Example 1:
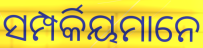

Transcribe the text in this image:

ସମ୍ପର୍କିୟମାନେ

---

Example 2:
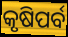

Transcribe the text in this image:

କୃଷିପର୍ବ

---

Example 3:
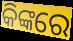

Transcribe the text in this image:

କିଙ୍କରେ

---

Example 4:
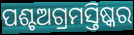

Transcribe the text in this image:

ପଶ୍ଚଅଗ୍ରମସ୍ତିଷ୍କର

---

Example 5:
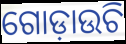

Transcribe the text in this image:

ଗୋଡ଼ାଉଚି